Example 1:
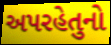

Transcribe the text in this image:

અપરહેતુનો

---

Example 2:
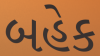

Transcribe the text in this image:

બહેક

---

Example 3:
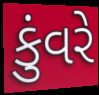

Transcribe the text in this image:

કુંવરે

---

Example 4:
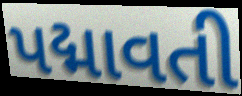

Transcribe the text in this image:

પદ્માવતી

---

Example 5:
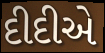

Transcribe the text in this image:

દીદીએ